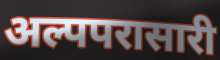
अल्पपरासारी